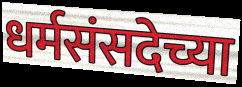
धर्मसंसदेच्या